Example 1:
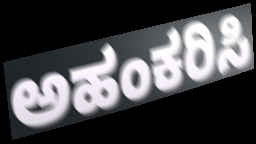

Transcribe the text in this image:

ಅಹಂಕರಿಸಿ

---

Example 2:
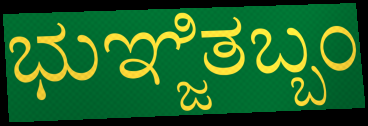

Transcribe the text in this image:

ಭುಞ್ಜಿತಬ್ಬಂ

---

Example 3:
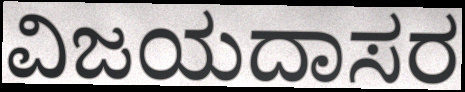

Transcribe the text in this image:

ವಿಜಯದಾಸರ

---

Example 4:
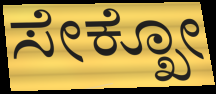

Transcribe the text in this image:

ಸೇಕ್ಖೋ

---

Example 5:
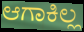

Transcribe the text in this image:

ಆಗಾಕಿಲ್ಲ